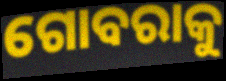
ଗୋବରାକୁ